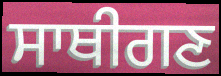
ਸਾਥੀਗਣ